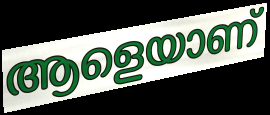
ആളെയാണ്